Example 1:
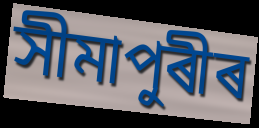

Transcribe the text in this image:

সীমাপুৰীৰ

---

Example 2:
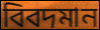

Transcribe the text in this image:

বিবদমান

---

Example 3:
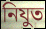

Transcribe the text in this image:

নিযুত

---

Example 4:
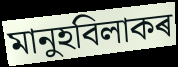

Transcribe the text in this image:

মানুহবিলাকৰ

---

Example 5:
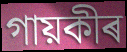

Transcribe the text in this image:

গায়কীৰ